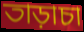
তাড়াচা